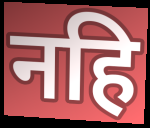
नहि